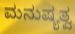
ಮನುಷ್ಯತ್ವ